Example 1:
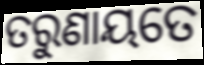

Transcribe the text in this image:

ତରୁଣାୟତେ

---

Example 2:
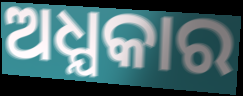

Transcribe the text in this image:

ଅଧ୍ଯକାର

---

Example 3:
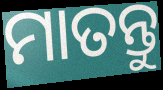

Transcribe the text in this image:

ମାତନ୍ତୁ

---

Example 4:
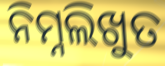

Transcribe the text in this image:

ନିମ୍ନଲିଖୁତ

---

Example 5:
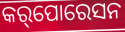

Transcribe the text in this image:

କର୍‌ପୋରେସନ